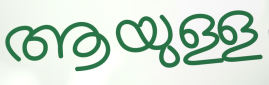
ആയുള്ള